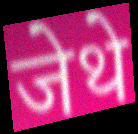
जेथे